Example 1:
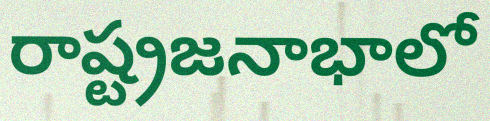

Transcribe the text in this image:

రాష్ట్రజనాభాలో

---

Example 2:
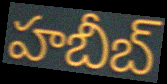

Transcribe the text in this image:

హబీబ్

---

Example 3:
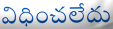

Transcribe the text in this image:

విధించలేదు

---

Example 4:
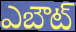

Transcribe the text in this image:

ఎబౌట్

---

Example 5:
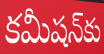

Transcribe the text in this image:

కమీషన్‌కు